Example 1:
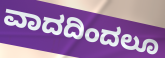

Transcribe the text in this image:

ವಾದದಿಂದಲೂ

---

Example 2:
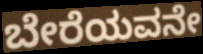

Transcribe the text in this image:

ಬೇರೆಯವನೇ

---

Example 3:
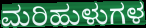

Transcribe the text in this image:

ಮರಿಹುಳುಗಳ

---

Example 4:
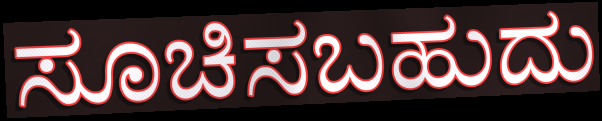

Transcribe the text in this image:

ಸೂಚಿಸಬಹುದು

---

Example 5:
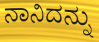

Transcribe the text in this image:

ನಾನಿದನ್ನು